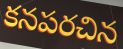
కనపరచిన